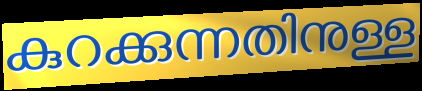
കുറക്കുന്നതിനുള്ള